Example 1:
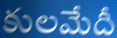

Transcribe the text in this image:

కులమేదీ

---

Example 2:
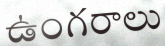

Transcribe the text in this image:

ఉంగరాలు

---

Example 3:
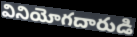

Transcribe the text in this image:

వినియోగదారుడి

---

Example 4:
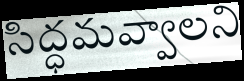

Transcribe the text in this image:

సిద్ధమవ్వాలని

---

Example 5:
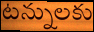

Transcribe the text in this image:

టన్నులకు